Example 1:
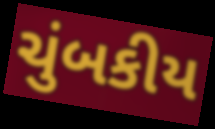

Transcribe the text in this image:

ચુંબકીય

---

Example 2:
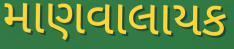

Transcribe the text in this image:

માણવાલાયક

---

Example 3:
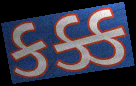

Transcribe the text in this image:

કક્ક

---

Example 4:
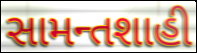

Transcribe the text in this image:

સામન્તશાહી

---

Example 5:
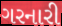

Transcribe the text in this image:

ગરનારી